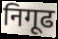
निगूढ